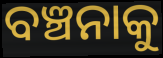
ବଞ୍ଚନାକୁ